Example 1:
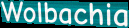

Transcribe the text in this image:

Wolbachia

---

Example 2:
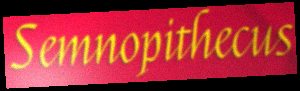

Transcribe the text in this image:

Semnopithecus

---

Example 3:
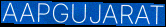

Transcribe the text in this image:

AAPGUJARAT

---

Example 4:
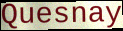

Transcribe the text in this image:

Quesnay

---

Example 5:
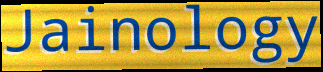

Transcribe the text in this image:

Jainology